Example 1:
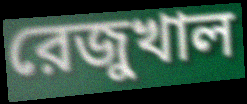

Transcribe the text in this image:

রেজুখাল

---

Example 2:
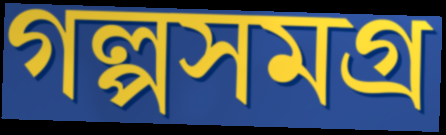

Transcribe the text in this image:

গল্পসমগ্র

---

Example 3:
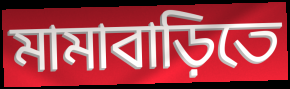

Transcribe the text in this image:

মামাবাড়িতে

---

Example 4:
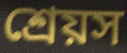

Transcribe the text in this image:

শ্রেয়স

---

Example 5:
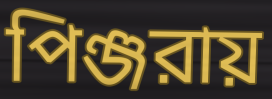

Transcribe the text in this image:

পিঞ্জরায়